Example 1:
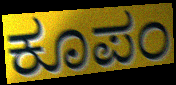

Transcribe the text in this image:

ಕೂಪಂ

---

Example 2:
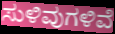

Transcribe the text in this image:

ಸುಳಿವುಗಳಿವೆ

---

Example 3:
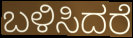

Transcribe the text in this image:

ಬಳಿಸಿದರೆ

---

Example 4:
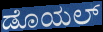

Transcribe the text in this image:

ಡೊಯಲ್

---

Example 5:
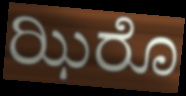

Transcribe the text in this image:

ಝಿರೊ